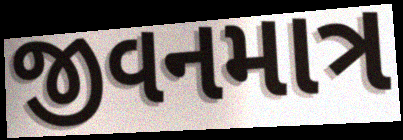
જીવનમાત્ર